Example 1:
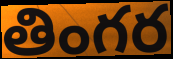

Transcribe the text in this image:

తింగర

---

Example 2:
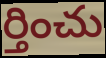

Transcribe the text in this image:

ర్తించు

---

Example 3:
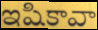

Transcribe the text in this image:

ఇషికావా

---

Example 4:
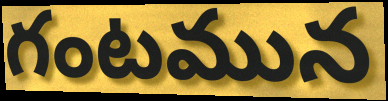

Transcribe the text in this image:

గంటమున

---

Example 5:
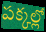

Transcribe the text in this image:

పక్కల్లో